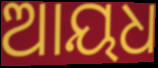
ଆୟଧ